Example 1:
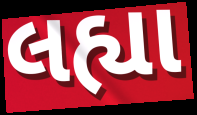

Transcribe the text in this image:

લહ્યા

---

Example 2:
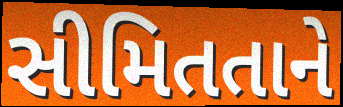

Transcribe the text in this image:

સીમિતતાને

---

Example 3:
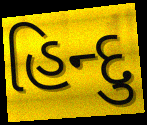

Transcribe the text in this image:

હિન્દુ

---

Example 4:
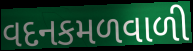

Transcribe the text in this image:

વદનકમળવાળી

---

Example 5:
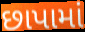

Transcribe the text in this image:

છાપામાં